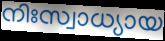
നിഃസ്വാധ്യായ